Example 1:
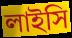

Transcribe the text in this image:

লাইসি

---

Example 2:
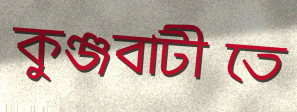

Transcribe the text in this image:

কুঞ্জবাটীতে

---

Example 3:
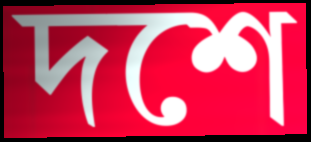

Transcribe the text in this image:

দশে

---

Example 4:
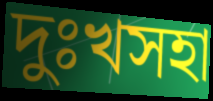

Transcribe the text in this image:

দুঃখসহা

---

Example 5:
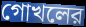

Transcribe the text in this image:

গোখলের